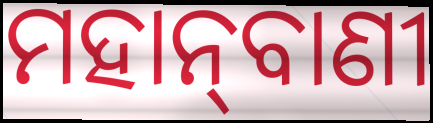
ମହାନ୍‌ବାଣୀ